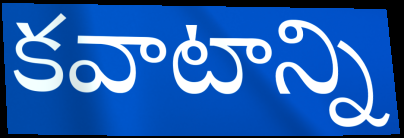
కవాటాన్ని